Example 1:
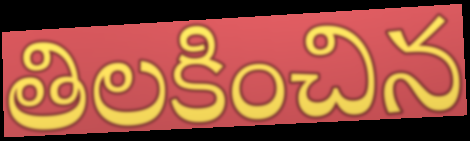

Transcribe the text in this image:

తిలకించిన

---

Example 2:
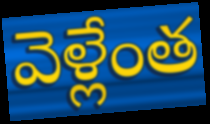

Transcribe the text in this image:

వెళ్లేంత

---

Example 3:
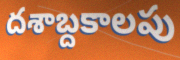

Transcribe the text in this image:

దశాబ్దకాలపు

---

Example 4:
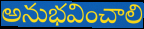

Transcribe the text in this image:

అనుభవించాలి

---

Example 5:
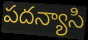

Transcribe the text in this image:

పదన్యాసి